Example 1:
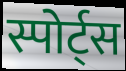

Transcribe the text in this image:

स्पोर्ट्स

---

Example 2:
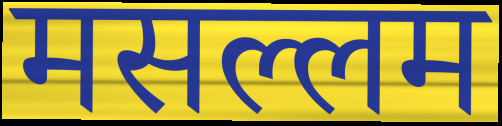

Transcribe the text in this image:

मसल्लम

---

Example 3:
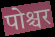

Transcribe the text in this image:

पोश्चर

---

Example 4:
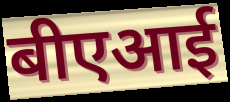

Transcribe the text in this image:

बीएआई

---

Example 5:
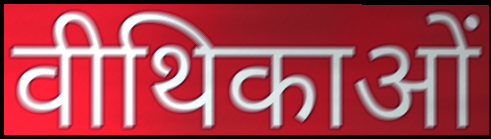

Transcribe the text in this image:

वीथिकाओं